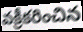
వక్రీకరించిన